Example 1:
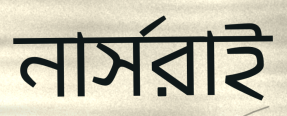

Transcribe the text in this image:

নার্সরাই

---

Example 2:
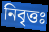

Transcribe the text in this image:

নিবৃত্তঃ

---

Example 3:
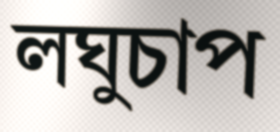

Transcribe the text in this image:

লঘুচাপ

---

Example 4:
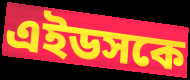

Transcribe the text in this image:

এইডসকে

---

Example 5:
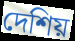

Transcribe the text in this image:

দেশিয়